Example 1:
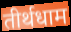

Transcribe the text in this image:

तीर्थधाम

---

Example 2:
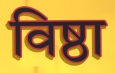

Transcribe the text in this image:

विष्ठा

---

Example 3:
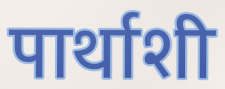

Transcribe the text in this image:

पार्थाशी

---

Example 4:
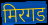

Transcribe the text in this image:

मिरगड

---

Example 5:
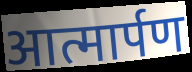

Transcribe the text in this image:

आत्मार्पण